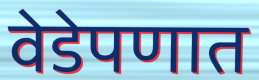
वेडेपणात